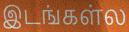
இடங்கள்ல